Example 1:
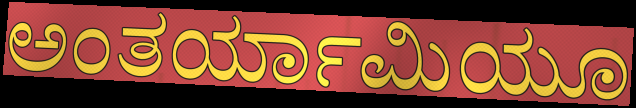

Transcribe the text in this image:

ಅಂತರ್ಯಾಮಿಯೂ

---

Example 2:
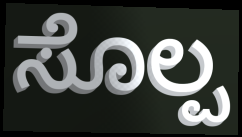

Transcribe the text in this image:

ಸೊಲ್ಪ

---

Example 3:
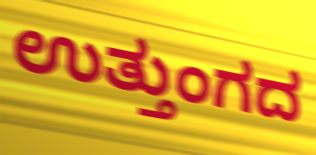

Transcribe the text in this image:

ಉತ್ತುಂಗದ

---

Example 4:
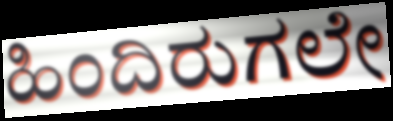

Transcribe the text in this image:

ಹಿಂದಿರುಗಲೇ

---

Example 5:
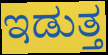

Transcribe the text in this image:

ಇಡುತ್ತ